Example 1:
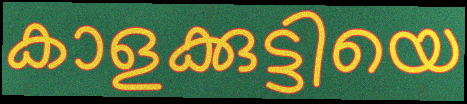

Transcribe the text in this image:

കാളക്കുട്ടിയെ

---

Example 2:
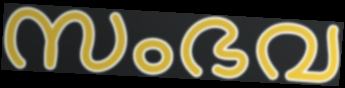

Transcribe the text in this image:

സംഭവ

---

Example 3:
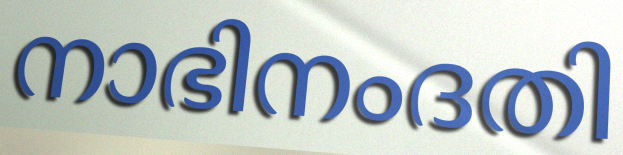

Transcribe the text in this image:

നാഭിനംദതി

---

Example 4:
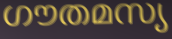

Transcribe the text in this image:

ഗൗതമസ്യ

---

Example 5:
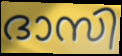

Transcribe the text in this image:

ദാസി